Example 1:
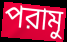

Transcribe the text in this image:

পরামু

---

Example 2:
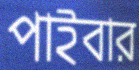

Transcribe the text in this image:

পাইবার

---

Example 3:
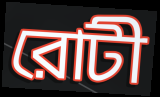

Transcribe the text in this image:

রোটী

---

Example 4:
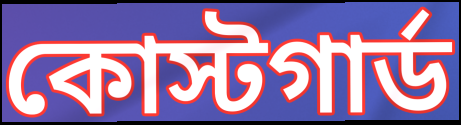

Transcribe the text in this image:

কোস্টগার্ড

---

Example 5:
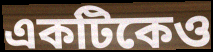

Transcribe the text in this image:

একটিকেও